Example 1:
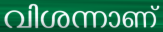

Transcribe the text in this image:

വിശന്നാണ്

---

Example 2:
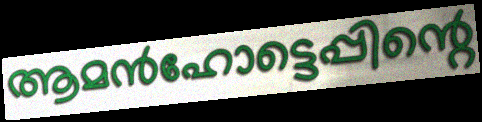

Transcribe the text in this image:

ആമൻഹോട്ടെപ്പിന്റെ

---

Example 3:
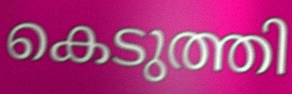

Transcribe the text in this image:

കെടുത്തി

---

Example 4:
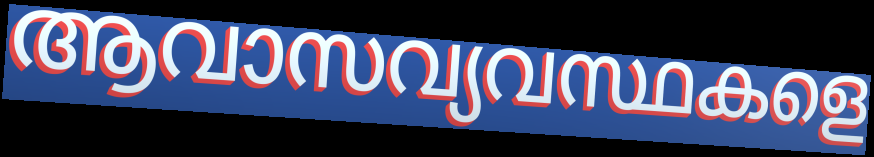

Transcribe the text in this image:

ആവാസവ്യവസ്ഥകളെ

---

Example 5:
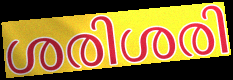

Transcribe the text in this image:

ശരിശരി